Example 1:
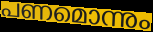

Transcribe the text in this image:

പണമൊന്നും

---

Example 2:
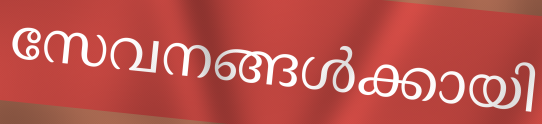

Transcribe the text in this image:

സേവനങ്ങൾക്കായി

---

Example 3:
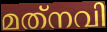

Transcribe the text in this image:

മത്‌നവി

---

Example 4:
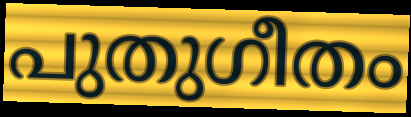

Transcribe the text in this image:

പുതുഗീതം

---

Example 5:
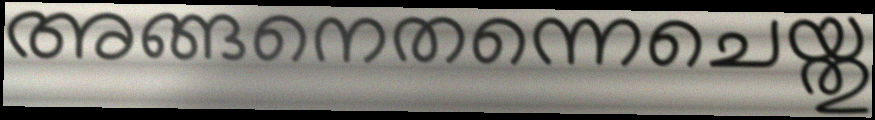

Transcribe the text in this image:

അങ്ങനെതന്നെചെയ്തു